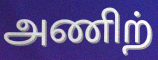
அணிற்